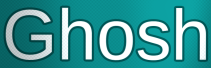
Ghosh